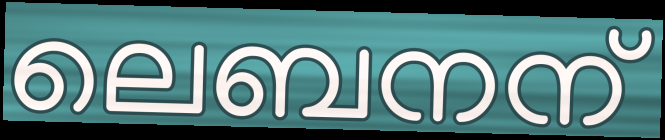
ലെബനന്